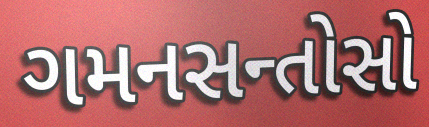
ગમનસન્તોસો